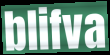
blifva